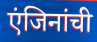
एंजिनांची